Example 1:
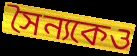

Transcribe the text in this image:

সৈন্যকেও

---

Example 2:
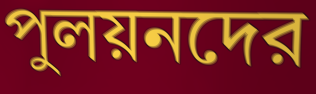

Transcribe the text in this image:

পুলয়নদের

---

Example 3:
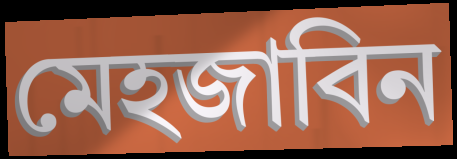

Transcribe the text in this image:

মেহজাবিন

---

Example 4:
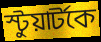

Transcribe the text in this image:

স্টুয়ার্টকে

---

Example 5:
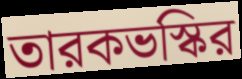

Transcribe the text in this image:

তারকভস্কির